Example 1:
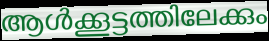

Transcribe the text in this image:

ആൾക്കൂട്ടത്തിലേക്കും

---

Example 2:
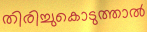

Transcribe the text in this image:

തിരിച്ചുകൊടുത്താൽ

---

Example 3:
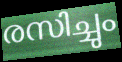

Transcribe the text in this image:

രസിച്ചും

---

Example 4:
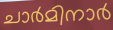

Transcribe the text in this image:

ചാർമിനാർ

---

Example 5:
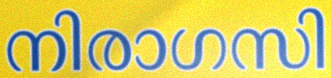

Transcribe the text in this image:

നിരാഗസി